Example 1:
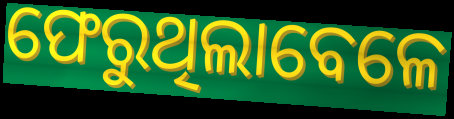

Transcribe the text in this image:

ଫେରୁଥିଲାବେଳେ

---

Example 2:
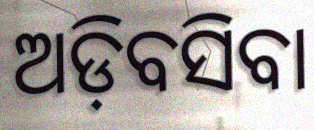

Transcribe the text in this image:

ଅଡ଼ିବସିବା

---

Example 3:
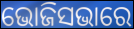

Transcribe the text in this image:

ଭୋଜିସଭାରେ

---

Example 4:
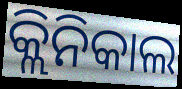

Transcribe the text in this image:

କ୍ଲିନିକାଲ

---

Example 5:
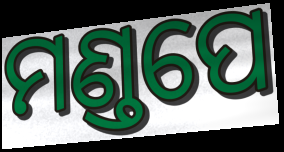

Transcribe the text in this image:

ମଣ୍ଡପେ